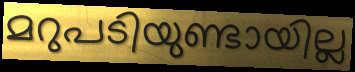
മറുപടിയുണ്ടായില്ല